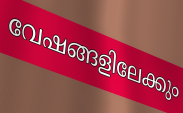
വേഷങ്ങളിലേക്കും